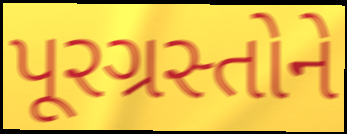
પૂરગ્રસ્તોને